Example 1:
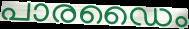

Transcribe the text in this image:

പാരഡൈം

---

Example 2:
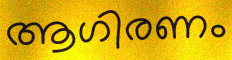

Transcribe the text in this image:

ആഗിരണം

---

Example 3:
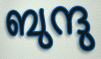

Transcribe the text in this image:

ബുന്ദു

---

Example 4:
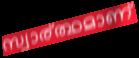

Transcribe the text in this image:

സ്വാര്ത്ഥമാണ്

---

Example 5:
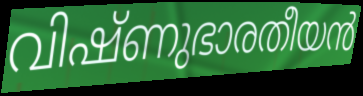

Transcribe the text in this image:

വിഷ്ണുഭാരതീയൻ